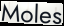
Moles